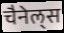
चैनेल्स